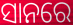
ସାନରେ